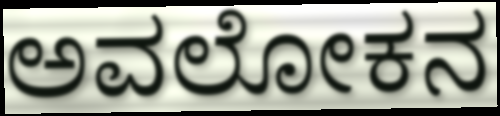
ಅವಲೋಕನ